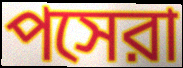
পসেরা